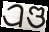
এণ্ড